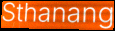
Sthanang